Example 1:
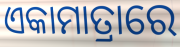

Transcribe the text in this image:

ଏକାମାତ୍ରାରେ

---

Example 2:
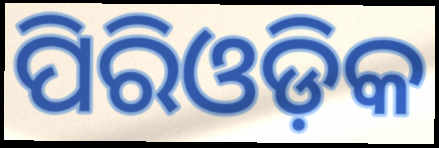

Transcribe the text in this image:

ପିରିଓଡ଼ିକ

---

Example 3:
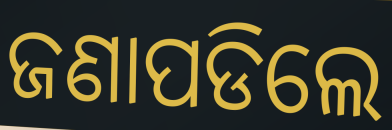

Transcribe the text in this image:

ଜଣାପଡିଲେ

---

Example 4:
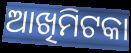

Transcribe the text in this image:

ଆଖିମିଟକା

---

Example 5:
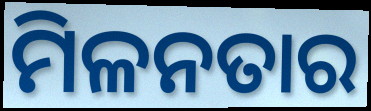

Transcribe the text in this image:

ମିଳନତାର